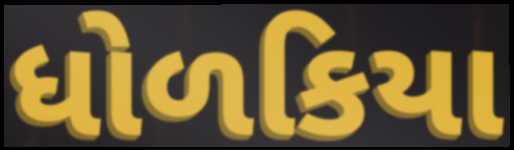
ધોળકિયા